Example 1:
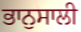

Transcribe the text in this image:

ਭਾਨੁਸਾਲੀ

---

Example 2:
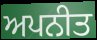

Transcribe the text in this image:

ਅਪਨੀਤ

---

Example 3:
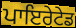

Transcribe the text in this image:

ਪਾਇਰੇਟੇਡ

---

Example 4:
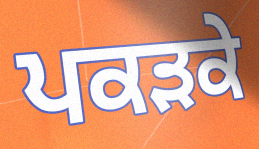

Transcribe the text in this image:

ਪਕੜਕੇ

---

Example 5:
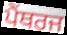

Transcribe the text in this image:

ਪੈਂਥਰਜ